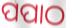
ପପାଠ